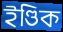
ইণ্ডিক